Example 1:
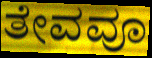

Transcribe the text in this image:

ತೇವವೂ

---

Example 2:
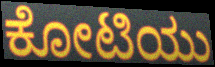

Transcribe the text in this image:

ಕೋಟಿಯು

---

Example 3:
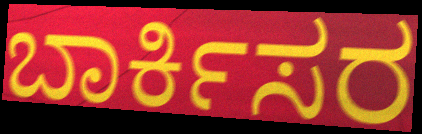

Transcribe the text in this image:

ಬಾರ್ಕಿಸರ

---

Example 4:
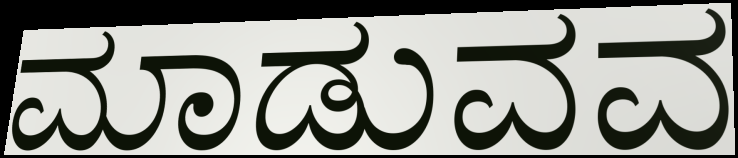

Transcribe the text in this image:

ಮಾಡುವವ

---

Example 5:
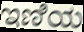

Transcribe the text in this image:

ಇಣಿಯ